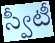
స్వీటీ